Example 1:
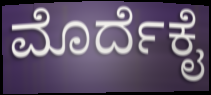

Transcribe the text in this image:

ಮೊರ್ದೆಕೈ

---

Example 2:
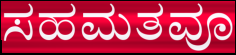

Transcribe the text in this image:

ಸಹಮತವೂ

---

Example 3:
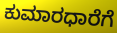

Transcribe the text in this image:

ಕುಮಾರಧಾರೆಗೆ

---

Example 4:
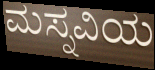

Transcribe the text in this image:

ಮಸ್ನವಿಯ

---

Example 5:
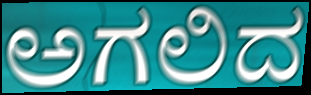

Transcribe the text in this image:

ಅಗಲಿದ